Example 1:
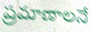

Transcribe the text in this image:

ప్రమాణాలనే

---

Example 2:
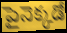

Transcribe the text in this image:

పైనెక్కడో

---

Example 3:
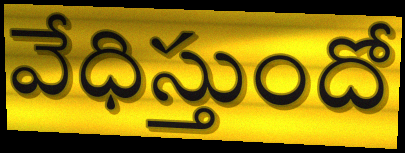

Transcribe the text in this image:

వేధిస్తుందో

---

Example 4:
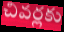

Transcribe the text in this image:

చివర్లకు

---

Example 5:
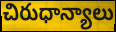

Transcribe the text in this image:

చిరుధాన్యాలు